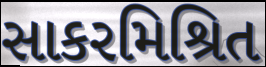
સાકરમિશ્રિત